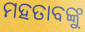
ମହତାବଙ୍କୁ